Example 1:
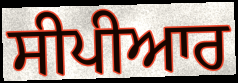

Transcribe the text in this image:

ਸੀਪੀਆਰ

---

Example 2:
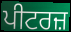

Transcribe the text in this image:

ਪੀਟਰਜ਼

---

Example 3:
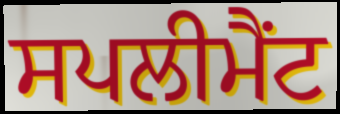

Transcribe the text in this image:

ਸਪਲੀਮੈਂਟ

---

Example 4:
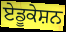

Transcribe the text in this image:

ਏਡੂਕੇਸ਼ਨ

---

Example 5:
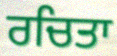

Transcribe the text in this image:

ਰਚਿਤਾ